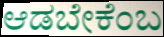
ಆಡಬೇಕೆಂಬ